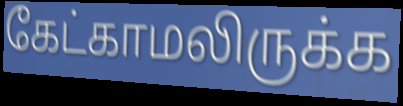
கேட்காமலிருக்க